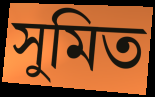
সুমিত